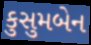
કુસુમબેન